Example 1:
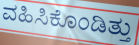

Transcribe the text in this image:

ವಹಿಸಿಕೊಂಡಿತ್ತು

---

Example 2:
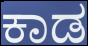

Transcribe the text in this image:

ಕಾಡ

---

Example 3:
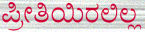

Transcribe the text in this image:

ಪ್ರೀತಿಯಿರಲಿಲ್ಲ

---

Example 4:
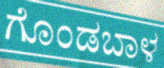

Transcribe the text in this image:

ಗೊಂಡಬಾಳ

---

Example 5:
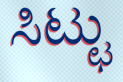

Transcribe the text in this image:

ಸಿಟ್ಟು